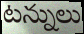
టన్నులు